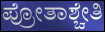
ಪ್ರೋತಾಶ್ಚೇತಿ